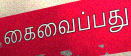
கைவைப்பது